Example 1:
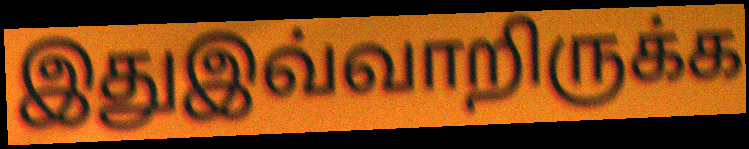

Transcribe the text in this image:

இதுஇவ்வாறிருக்க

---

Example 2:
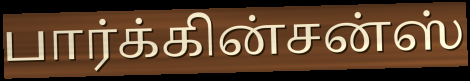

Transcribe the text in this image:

பார்க்கின்சன்ஸ்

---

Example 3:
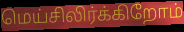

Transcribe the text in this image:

மெய்சிலிர்க்கிறோம்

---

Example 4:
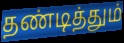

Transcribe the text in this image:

தண்டித்தும்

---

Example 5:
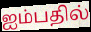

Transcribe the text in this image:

ஐம்பதில்